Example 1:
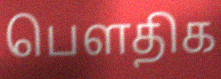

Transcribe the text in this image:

பெளதிக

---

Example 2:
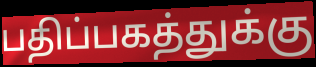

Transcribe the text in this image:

பதிப்பகத்துக்கு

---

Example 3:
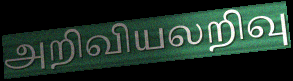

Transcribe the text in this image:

அறிவியலறிவு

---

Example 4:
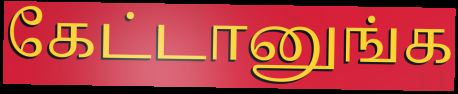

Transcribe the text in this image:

கேட்டானுங்க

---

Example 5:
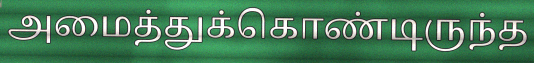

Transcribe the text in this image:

அமைத்துக்கொண்டிருந்த